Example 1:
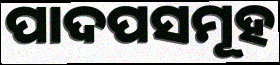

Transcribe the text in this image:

ପାଦପସମୂହ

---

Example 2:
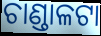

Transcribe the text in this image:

ଚାଣ୍ଡାଳଟା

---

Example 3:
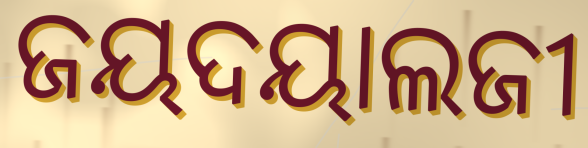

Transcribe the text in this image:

ଜୟଦୟାଲଜୀ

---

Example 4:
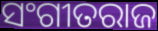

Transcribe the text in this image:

ସଂଗୀତରାଜ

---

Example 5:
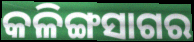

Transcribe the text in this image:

କଳିଙ୍ଗସାଗର